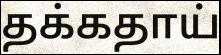
தக்கதாய்